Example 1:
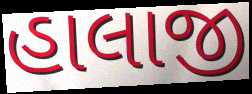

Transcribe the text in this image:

હાલાજી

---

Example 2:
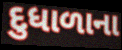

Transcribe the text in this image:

દુધાળાના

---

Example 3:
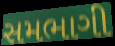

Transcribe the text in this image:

સમભાગી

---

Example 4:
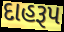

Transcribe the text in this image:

દાહરૂપ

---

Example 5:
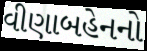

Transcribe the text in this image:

વીણાબહેનનો